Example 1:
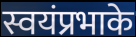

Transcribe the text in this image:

स्वयंप्रभाके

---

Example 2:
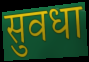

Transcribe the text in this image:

सुवधा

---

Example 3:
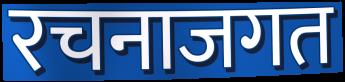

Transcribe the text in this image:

रचनाजगत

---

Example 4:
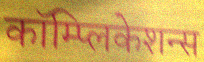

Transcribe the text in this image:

कॉम्प्लिकेशन्स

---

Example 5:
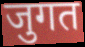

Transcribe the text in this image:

जुगत